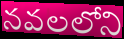
నవలలోని